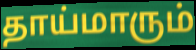
தாய்மாரும்